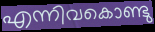
എന്നിവകൊണ്ടു